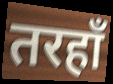
तरहाँ